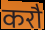
करौ